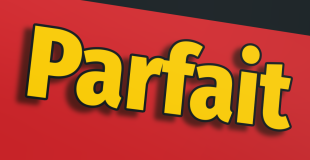
Parfait